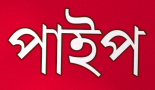
পাইপ